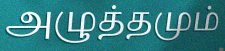
அழுத்தமும்